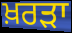
ਖ਼ਰੜਾ